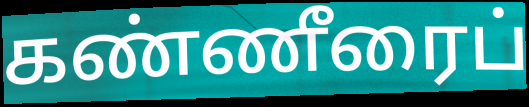
கண்ணீரைப்